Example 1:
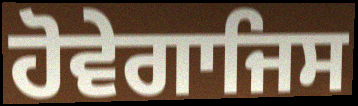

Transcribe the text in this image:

ਹੋਵੇਗਾਜਿਸ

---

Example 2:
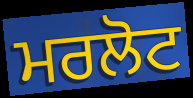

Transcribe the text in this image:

ਮਰਲੋਟ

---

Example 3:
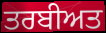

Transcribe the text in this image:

ਤਰਬੀਅਤ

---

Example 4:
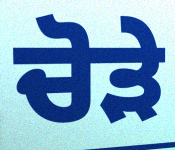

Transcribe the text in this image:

ਚੋੜੇ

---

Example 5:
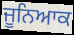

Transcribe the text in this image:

ਜੂਨਿਆਕ